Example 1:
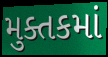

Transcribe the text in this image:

મુક્તકમાં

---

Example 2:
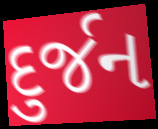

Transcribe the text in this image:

દુર્જન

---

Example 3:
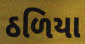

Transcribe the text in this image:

ઠળિયા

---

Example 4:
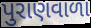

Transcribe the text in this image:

પુરાણવાળા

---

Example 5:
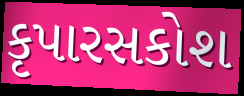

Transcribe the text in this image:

કૃપારસકોશ